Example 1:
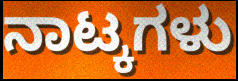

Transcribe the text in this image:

ನಾಟ್ಕಗಳು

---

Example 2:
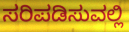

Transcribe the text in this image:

ಸರಿಪಡಿಸುವಲ್ಲಿ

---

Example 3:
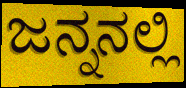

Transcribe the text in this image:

ಜನ್ನನಲ್ಲಿ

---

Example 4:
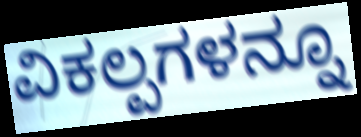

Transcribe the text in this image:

ವಿಕಲ್ಪಗಳನ್ನೂ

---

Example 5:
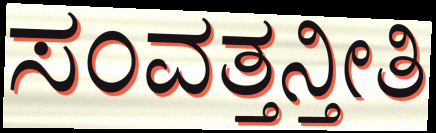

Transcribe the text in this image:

ಸಂವತ್ತನ್ತೀತಿ